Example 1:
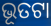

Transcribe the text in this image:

ଭୂତଟା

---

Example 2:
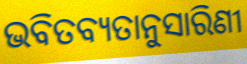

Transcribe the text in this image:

ଭବିତବ୍ୟତାନୁସାରିଣୀ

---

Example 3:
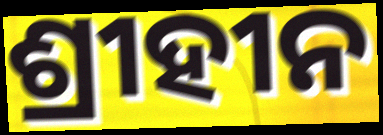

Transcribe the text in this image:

ଶ୍ରୀହୀନ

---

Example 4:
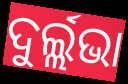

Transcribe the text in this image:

ଦୁର୍ଲ୍ଲଭା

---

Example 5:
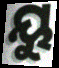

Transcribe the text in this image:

ୟୁ